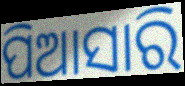
ପିଆସାରି